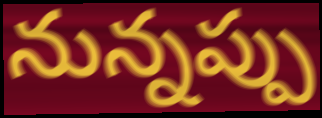
నున్నప్పు